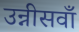
उन्नीसवाँ